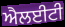
ਐਲਈਟੀ